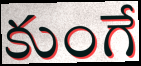
కుంగే